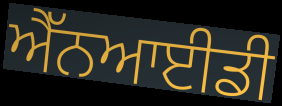
ਐੱਨਆਈਡੀ